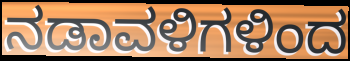
ನಡಾವಳಿಗಳಿಂದ